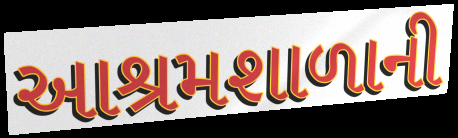
આશ્રમશાળાની